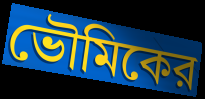
ভৌমিকের